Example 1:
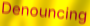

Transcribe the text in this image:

Denouncing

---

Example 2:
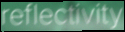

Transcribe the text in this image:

reflectivity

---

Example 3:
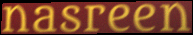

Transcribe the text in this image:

nasreen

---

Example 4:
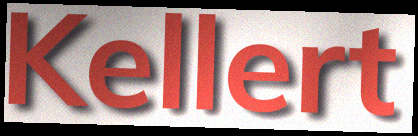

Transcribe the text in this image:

Kellert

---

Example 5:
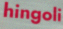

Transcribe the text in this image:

hingoli